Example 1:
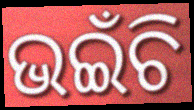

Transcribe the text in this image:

ଭଇଁଚି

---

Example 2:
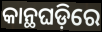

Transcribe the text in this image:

କାନ୍ଥଘଡ଼ିରେ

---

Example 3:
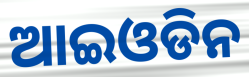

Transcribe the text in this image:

ଆଇଓଡିନ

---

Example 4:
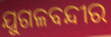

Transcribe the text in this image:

ଯୁଗଳବନ୍ଦୀର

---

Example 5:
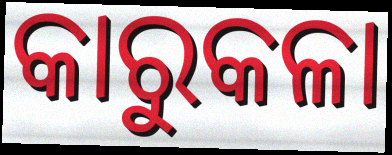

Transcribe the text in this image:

କାରୁକଳା